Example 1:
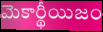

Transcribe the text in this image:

మెకార్థీయిజం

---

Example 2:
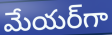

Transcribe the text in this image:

మేయర్‌గా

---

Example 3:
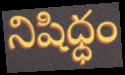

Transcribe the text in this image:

నిషిధ్ధం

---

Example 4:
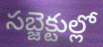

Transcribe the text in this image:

సబ్జెక్టుల్లో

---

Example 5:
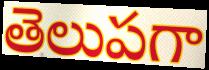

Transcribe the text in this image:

తెలుపగా